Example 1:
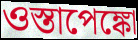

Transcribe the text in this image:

ওস্তাপেঙ্কো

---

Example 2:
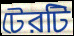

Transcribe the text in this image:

টেরটি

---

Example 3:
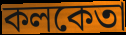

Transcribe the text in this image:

কলকেতা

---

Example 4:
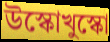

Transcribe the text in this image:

উস্কোখুস্কো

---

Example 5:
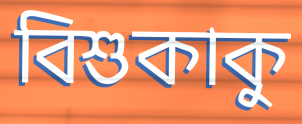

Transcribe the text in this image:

বিশুকাকু